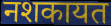
नशकायत